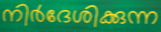
നിർദേശിക്കുന്ന